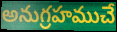
అనుగ్రహముచే